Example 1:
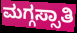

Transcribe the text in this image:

ಮಗ್ಗಸ್ಸಾತಿ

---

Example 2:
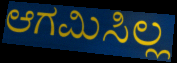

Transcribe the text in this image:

ಆಗಮಿಸಿಲ್ಲ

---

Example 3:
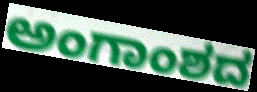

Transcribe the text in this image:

ಅಂಗಾಂಶದ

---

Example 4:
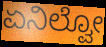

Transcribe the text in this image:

ಏನಿಲ್ವೋ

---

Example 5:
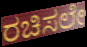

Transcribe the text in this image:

ರಚಿಸಲೇ